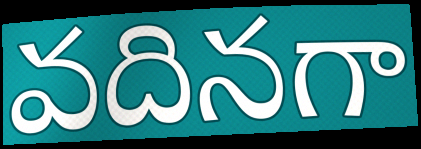
వదినగా